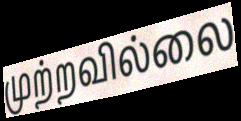
முற்றவில்லை